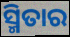
ସ୍ମିତାର